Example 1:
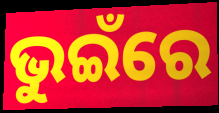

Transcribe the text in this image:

ଭୁଇଁରେ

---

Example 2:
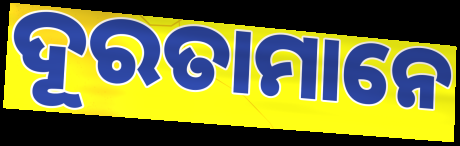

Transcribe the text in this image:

ଦୂରତାମାନେ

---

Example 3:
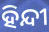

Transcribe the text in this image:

ହିନ୍ଦୀ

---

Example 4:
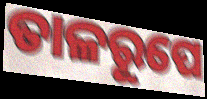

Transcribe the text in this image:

ତାଳରୂପେ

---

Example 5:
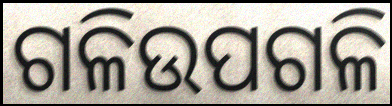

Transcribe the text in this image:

ଗଳିଉପଗଳି